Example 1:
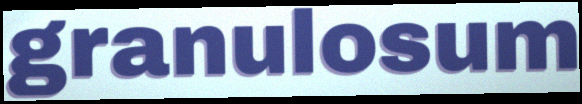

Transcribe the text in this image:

granulosum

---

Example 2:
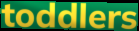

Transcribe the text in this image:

toddlers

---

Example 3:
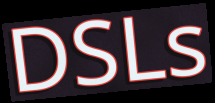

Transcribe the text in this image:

DSLs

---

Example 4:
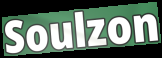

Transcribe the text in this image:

Soulzon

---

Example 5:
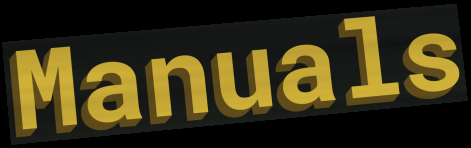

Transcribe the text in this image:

Manuals